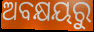
ଅବକ୍ଷୟରୁ